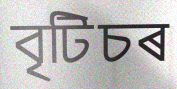
বৃটিচৰ